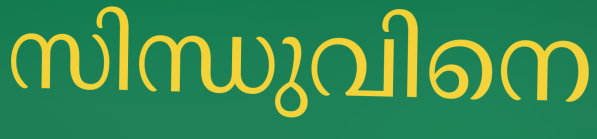
സിന്ധുവിനെ